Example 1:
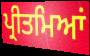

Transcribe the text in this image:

ਪ੍ਰੀਤਮਿਆਂ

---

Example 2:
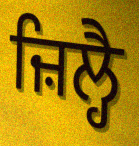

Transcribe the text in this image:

ਜ਼ਿਲ੍ਹੈ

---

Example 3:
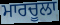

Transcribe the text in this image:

ਮਾਰਚੂਲਾ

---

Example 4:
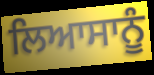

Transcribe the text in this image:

ਲਿਆਸਾਨੂੰ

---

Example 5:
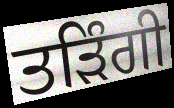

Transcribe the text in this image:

ਤੜਿੰਗੀ